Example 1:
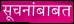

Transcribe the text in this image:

सूचनांबाबत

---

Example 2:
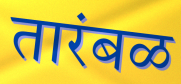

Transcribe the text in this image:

तारंबळ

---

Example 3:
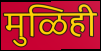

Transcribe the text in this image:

मुळिही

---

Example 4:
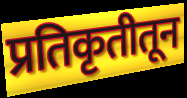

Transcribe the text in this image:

प्रतिकृतीतून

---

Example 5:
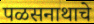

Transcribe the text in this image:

पळसनाथाचे